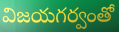
విజయగర్వంతో